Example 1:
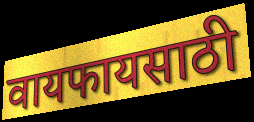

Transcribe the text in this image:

वायफायसाठी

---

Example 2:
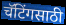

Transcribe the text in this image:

चॅटिंगसाठी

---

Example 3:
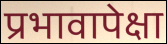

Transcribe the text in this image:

प्रभावापेक्षा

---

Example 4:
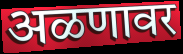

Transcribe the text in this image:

अळणावर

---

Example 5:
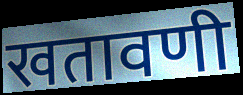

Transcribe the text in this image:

खतावणी